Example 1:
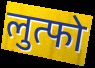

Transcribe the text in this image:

लुत्फो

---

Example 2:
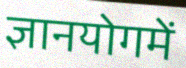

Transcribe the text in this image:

ज्ञानयोगमें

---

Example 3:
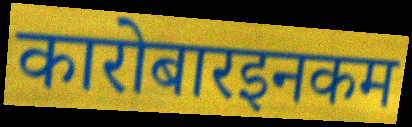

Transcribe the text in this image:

कारोबारइनकम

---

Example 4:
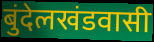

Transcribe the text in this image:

बुंदेलखंडवासी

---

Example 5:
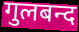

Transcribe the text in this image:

गुलबन्द